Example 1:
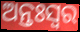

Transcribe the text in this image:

ଅନ୍ତଃସ୍ଵର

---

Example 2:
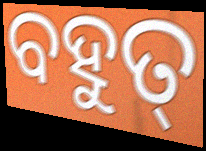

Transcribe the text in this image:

ବହୁତ୍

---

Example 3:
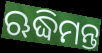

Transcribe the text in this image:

ଋଦ୍ଧିମନ୍ତ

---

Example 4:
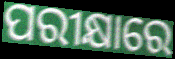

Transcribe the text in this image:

ପରୀକ୍ଷାରେ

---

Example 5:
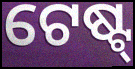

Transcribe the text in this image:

ଟେଷ୍ଟ୍